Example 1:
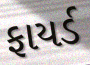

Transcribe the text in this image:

ફાયર્ડ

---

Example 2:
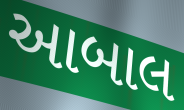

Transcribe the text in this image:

આબાલ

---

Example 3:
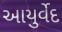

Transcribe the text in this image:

આયુર્વેદ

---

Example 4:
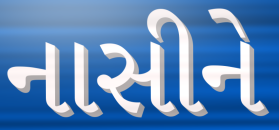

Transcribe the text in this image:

નાસીને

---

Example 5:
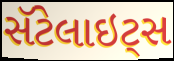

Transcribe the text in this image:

સૅટેલાઇટ્સ